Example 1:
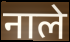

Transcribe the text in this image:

नाले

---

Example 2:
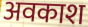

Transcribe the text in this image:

अवकाश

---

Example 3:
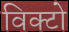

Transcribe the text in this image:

विक्टो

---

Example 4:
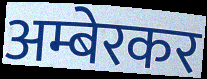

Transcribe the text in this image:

अम्बेरकर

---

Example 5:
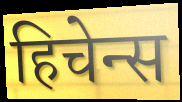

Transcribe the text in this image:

हिचेन्स